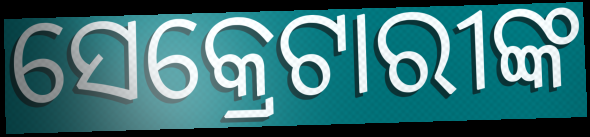
ସେକ୍ରେଟାରୀଙ୍କ